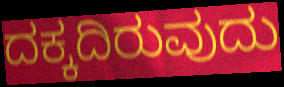
ದಕ್ಕದಿರುವುದು